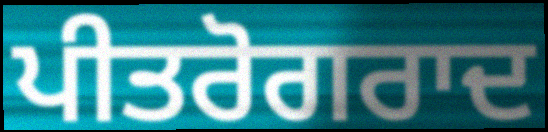
ਪੀਤਰੋਗਰਾਦ